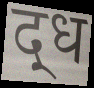
द्ध